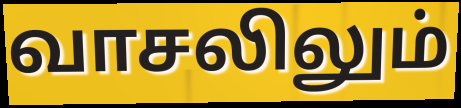
வாசலிலும்